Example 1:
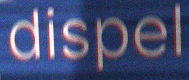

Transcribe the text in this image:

dispel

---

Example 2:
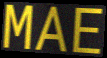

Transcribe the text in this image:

MAE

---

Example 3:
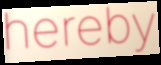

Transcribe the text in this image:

hereby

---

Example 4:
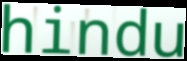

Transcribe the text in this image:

hindu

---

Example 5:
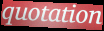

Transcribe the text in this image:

quotation